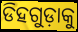
ଡିହଗୁଡ଼ାକୁ